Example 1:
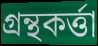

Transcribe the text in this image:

গ্রন্থকর্ত্তা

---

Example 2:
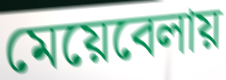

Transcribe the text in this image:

মেয়েবেলায়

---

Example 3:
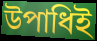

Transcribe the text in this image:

উপাধিই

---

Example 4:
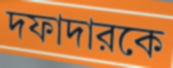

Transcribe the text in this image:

দফাদারকে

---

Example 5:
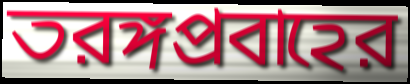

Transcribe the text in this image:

তরঙ্গপ্রবাহের